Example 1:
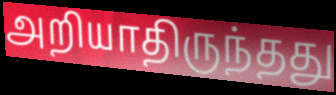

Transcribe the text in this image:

அறியாதிருந்தது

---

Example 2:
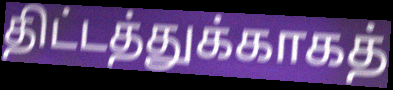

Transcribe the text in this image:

திட்டத்துக்காகத்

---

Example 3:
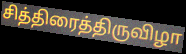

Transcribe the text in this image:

சித்திரைத்திருவிழா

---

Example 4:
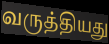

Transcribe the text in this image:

வருத்தியது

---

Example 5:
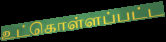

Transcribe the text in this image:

உட்கொள்ளப்பட்ட